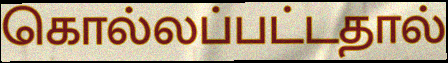
கொல்லப்பட்டதால்